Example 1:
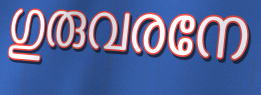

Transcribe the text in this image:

ഗുരുവരനേ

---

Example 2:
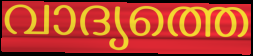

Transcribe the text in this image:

വാദ്യത്തെ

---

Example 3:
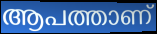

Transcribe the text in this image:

ആപത്താണ്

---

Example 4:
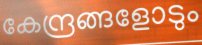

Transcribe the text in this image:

കേന്ദ്രങ്ങളോടും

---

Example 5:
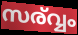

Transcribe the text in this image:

സര്വ്വം